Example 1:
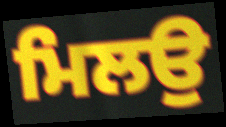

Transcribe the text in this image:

ਮਿਲਉ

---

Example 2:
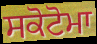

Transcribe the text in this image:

ਸਕੋਟੋਮਾ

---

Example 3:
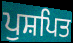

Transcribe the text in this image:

ਪੁਸ਼ਪਿਤ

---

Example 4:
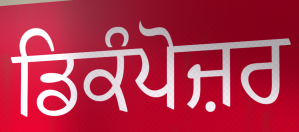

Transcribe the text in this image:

ਡਿਕੰਪੋਜ਼ਰ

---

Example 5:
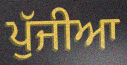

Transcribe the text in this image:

ਪੁੱਜੀਆ